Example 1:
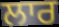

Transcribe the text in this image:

ਲਾਰ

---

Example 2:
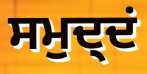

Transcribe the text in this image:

ਸਮੁਦ੍ਦਂ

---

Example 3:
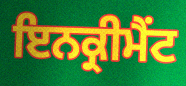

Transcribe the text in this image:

ਇਨਕ੍ਰੀਮੈਂਟ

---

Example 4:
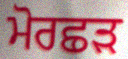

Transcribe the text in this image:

ਮੋਰਛੜ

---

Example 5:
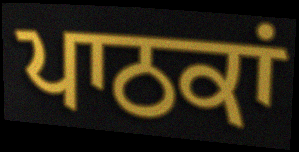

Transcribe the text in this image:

ਪਾਠਕਾਂ